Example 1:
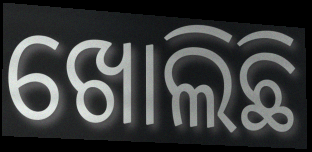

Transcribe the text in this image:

ଖୋଲିଛି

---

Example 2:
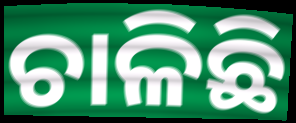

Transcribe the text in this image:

ଚାଳିଛି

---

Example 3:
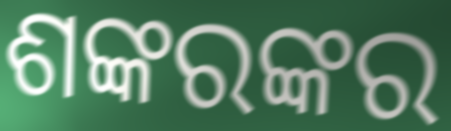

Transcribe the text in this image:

ଶଙ୍କରଙ୍କର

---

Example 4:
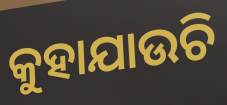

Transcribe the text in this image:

କୁହାଯାଉଚି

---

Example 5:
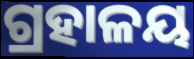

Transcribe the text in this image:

ଗ୍ରହାଳୟ